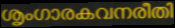
ശൃംഗാരകവനരീതി